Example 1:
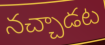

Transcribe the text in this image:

నచ్చాడట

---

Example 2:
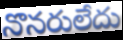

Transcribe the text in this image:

నొనరులేదు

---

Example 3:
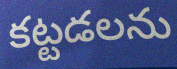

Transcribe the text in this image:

కట్టడలను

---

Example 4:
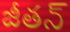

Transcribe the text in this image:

జీతన్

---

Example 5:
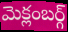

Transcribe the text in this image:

మెక్లంబర్గ్